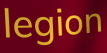
legion